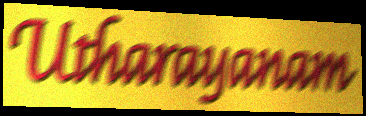
Utharayanam